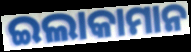
ଇଲାକାମାନ